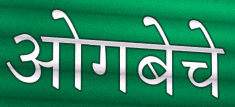
ओगबेचे